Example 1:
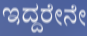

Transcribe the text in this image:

ಇದ್ದರೇನೇ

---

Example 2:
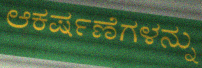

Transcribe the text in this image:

ಆಕರ್ಷಣೆಗಳನ್ನು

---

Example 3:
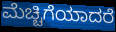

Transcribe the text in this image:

ಮೆಚ್ಚಿಗೆಯಾದರೆ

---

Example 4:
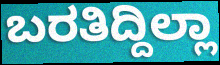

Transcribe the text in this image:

ಬರತಿದ್ದಿಲ್ಲಾ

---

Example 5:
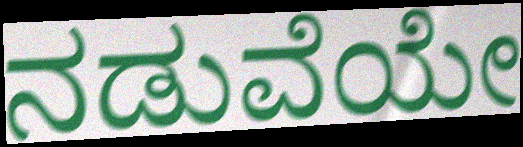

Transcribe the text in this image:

ನಡುವೆಯೇ